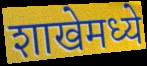
शाखेमध्ये